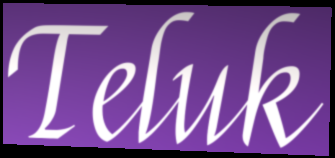
Teluk